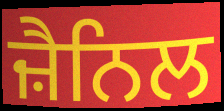
ਜ਼ੈਨਿਲ